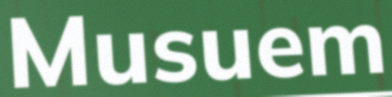
Musuem